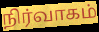
நிர்வாகம்